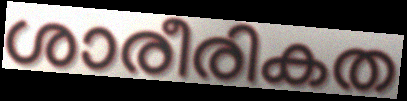
ശാരീരികത